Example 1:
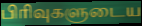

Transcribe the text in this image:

பிரிவுகளுடைய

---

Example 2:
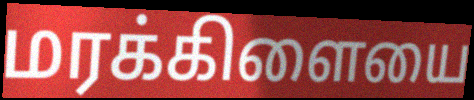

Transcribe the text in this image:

மரக்கிளையை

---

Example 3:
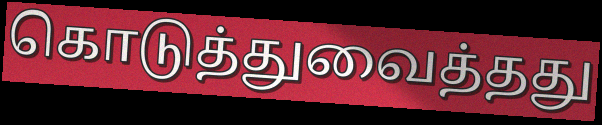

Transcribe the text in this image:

கொடுத்துவைத்தது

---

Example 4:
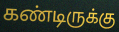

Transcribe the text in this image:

கண்டிருக்கு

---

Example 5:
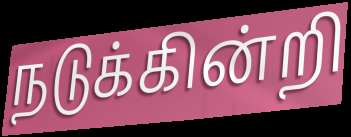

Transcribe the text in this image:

நடுக்கின்றி